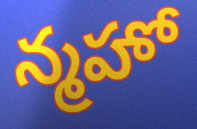
న్మహో